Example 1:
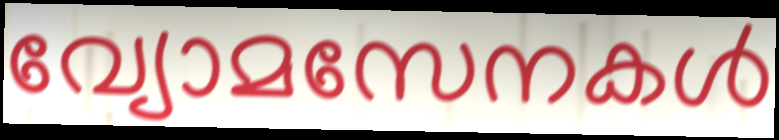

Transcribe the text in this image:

വ്യോമസേനകൾ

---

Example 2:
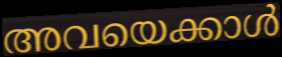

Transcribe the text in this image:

അവയെക്കാൾ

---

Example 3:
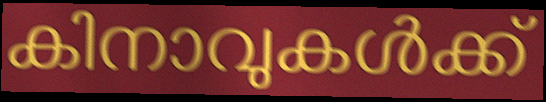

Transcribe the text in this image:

കിനാവുകൾക്ക്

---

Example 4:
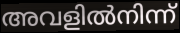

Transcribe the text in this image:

അവളിൽനിന്ന്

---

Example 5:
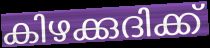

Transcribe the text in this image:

കിഴക്കുദിക്ക്